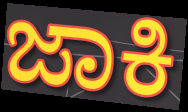
ಜಾಕಿ